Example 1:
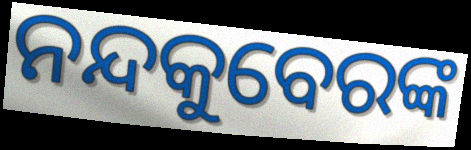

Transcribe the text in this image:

ନନ୍ଦକୁବେରଙ୍କ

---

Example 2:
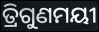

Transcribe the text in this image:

ତ୍ରିଗୁଣମୟୀ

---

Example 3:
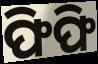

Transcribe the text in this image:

ଫିଫି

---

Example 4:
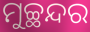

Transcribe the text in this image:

ମୁଚ୍ଛନ୍ଦର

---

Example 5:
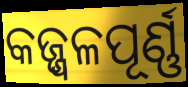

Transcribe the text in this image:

କଜ୍ଜ୍ୱଳପୂର୍ଣ୍ଣ